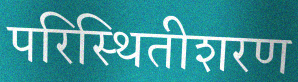
परिस्थितीशरण